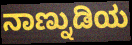
ನಾಣ್ನುಡಿಯ